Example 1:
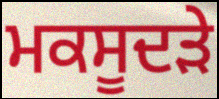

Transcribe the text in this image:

ਮਕਸੂਦੜੇ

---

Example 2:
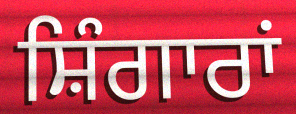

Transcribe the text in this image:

ਸ਼ਿੰਗਾਰਾਂ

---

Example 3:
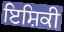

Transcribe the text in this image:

ਇਸ਼ਿਕੀ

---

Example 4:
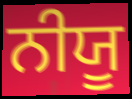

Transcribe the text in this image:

ਨੀਯੂ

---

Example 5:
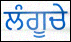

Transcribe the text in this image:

ਲੰਗੂਚੇ